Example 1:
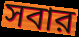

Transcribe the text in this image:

সবার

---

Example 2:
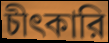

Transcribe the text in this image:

চীৎকারি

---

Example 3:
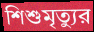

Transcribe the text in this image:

শিশুমৃত্যুর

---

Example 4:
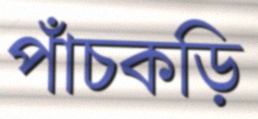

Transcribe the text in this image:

পাঁচকড়ি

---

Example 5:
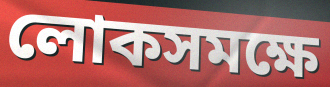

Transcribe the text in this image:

লোকসমক্ষে